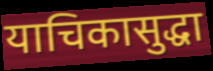
याचिकासुद्धा